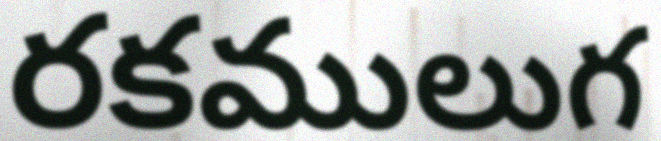
రకములుగ